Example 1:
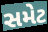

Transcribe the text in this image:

સમેટ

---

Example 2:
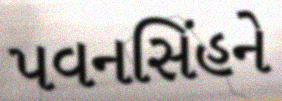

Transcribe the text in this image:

પવનસિંહને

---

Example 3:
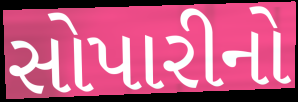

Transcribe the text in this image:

સોપારીનો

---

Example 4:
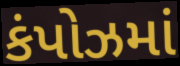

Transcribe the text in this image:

કંપોઝમાં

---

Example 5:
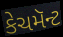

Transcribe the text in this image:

કેચમૅન્ટ